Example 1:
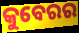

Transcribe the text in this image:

କୁବେରର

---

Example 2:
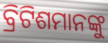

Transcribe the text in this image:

ବ୍ରିଟିଶମାନଙ୍କୁ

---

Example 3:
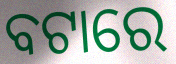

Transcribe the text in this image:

ବଟାରେ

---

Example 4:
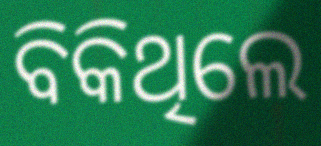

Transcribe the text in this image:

ବିକିଥିଲେ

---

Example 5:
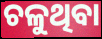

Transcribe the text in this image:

ଚଳୁଥିବା